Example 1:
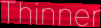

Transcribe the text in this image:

Thinner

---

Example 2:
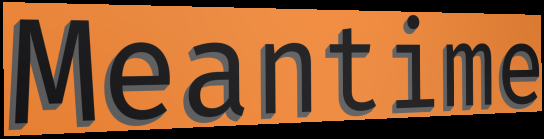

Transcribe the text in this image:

Meantime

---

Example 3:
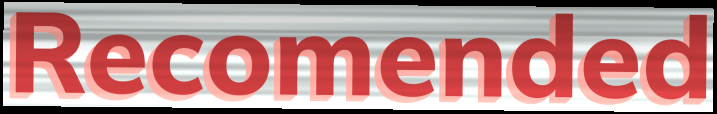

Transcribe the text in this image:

Recomended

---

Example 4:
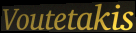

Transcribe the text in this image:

Voutetakis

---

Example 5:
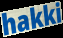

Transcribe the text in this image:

hakki